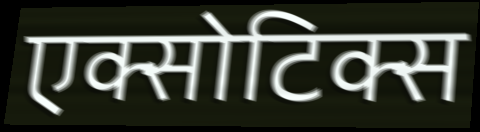
एक्सोटिक्स